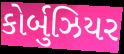
કોર્બુઝિયર